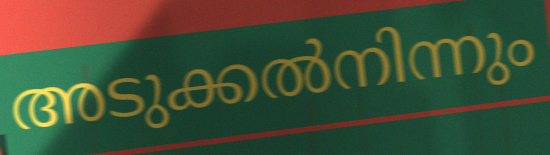
അടുക്കൽനിന്നും